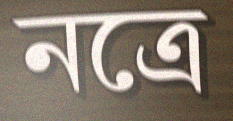
নত্রে